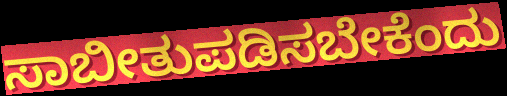
ಸಾಬೀತುಪಡಿಸಬೇಕೆಂದು